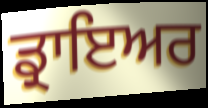
ਡ੍ਰਾਇਅਰ